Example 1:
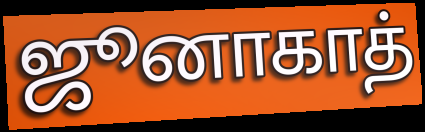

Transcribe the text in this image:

ஜூனாகாத்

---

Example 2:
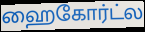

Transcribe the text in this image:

ஹைகோர்ட்ல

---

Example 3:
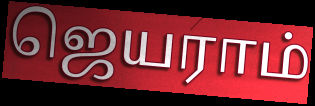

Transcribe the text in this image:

ஜெயராம்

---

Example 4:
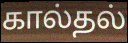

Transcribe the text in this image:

கால்தல்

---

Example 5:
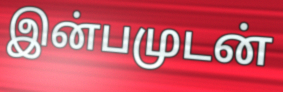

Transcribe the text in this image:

இன்பமுடன்